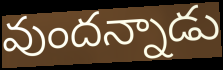
వుందన్నాడు